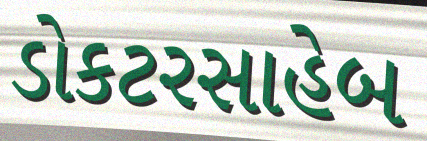
ડોકટરસાહેબ